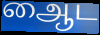
ஆைட